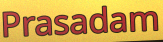
Prasadam